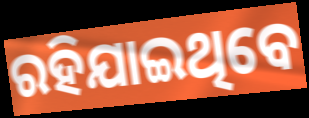
ରହିଯାଇଥିବେ